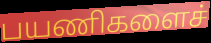
பயணிகளைச்